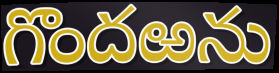
గొందఱను